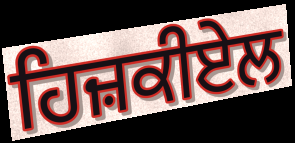
ਹਿਜ਼ਕੀਏਲ